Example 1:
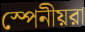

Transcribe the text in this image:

স্পেনীয়রা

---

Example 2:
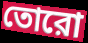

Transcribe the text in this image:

তোরো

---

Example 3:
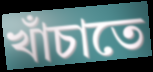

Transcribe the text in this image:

খাঁচাতে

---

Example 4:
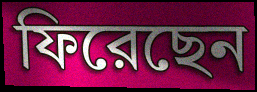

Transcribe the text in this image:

ফিরেছেন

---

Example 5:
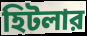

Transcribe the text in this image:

হিটলার